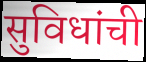
सुविधांची